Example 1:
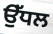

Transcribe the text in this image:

ਉੱਧਲ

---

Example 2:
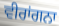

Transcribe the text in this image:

ਵੀਰਾਂਗਨਾ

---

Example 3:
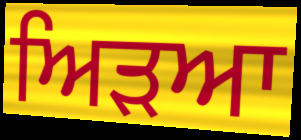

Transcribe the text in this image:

ਅਿੜਆ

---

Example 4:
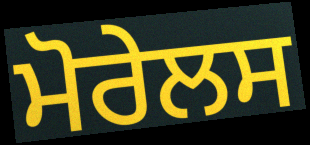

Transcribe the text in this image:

ਮੋਰੇਲਸ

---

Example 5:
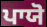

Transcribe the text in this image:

ਪਾਯੋ